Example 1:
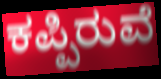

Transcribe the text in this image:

ಕಪ್ಪಿರುವೆ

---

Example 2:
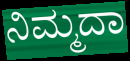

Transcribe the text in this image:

ನಿಮ್ಮದಾ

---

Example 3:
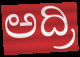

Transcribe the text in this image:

ಅದ್ರಿ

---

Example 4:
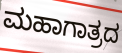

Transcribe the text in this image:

ಮಹಾಗಾತ್ರದ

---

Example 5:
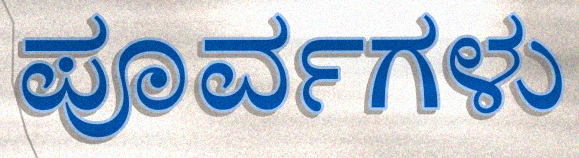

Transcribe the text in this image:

ಪೂರ್ವಗಳು